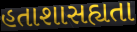
હતાશાસહ્યતા